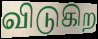
விடுகிற